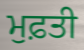
ਮੁਫ਼ਤੀ